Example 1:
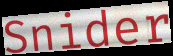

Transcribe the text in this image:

Snider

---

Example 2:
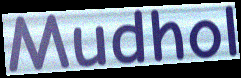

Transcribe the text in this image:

Mudhol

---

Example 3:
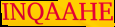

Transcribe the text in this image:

INQAAHE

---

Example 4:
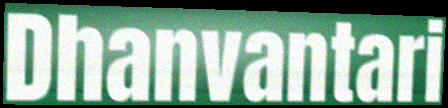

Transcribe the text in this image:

Dhanvantari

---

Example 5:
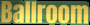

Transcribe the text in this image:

Ballroom